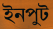
ইনপুট